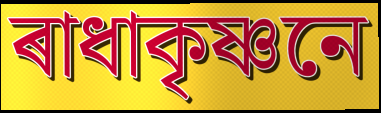
ৰাধাকৃষ্ণনে